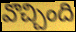
వొచ్చింది